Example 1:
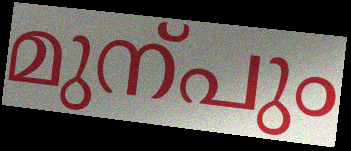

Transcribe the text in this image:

മുന്പും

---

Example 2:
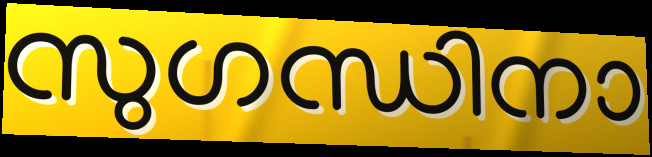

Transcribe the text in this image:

സുഗന്ധിനാ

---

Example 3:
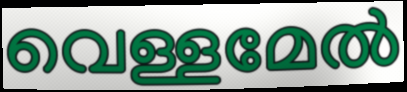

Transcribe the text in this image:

വെള്ളമേൽ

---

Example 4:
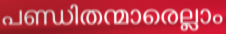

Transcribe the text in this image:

പണ്ഡിതന്മാരെല്ലാം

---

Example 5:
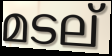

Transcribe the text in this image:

മടല്